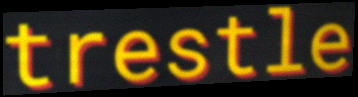
trestle